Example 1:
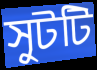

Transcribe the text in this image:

সুটটি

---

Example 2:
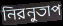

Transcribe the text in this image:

নিরনুতাপ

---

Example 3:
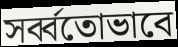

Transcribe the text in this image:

সর্ব্বতোভাবে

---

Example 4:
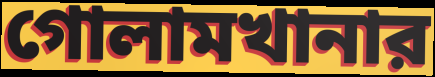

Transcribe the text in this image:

গোলামখানার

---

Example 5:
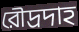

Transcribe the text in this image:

রৌদ্রদাহ